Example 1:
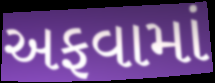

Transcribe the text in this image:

અફવામાં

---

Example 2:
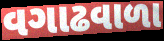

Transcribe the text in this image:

વગાઢવાળા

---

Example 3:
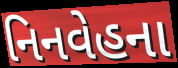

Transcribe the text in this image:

નિનવેહના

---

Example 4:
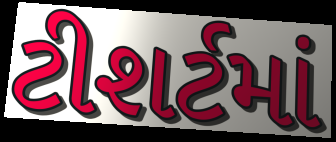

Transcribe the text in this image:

ટીશર્ટમાં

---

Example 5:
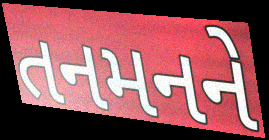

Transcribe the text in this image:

તનમનને